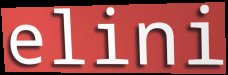
elini